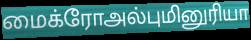
மைக்ரோஅல்புமினுரியா